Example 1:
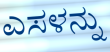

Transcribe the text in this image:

ಎಸಳನ್ನು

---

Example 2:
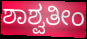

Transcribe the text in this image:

ಶಾಶ್ವತೀಂ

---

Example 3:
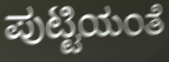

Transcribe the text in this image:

ಪುಟ್ಟಿಯಂತೆ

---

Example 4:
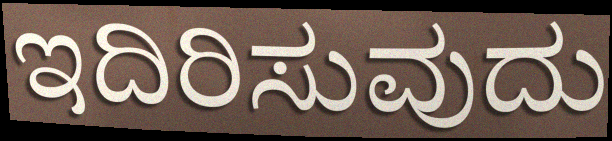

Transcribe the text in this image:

ಇದಿರಿಸುವುದು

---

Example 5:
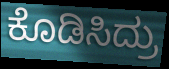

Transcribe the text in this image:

ಕೊಡಿಸಿದ್ರು